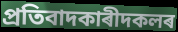
প্ৰতিবাদকাৰীদকলৰ